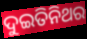
ଦୁଇତିନିଥର